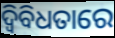
ଦ୍ୱିବିଧତାରେ